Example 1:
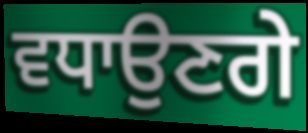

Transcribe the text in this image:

ਵਧਾਉਣਗੇ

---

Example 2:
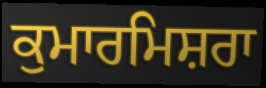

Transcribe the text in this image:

ਕੁਮਾਰਮਿਸ਼ਰਾ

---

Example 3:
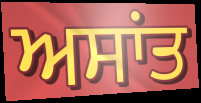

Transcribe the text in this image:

ਅਸਾਂਤ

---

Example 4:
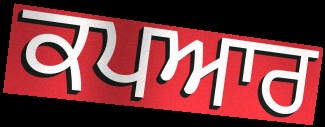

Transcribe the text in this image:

ਕਪਆਰ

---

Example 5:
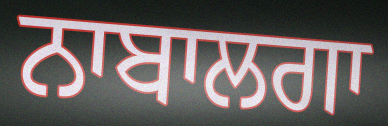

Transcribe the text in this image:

ਨਾਬਾਲਗਾ